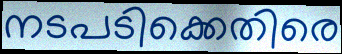
നടപടിക്കെതിരെ